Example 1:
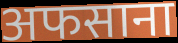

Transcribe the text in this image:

अफसाना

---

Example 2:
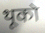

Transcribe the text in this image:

थूको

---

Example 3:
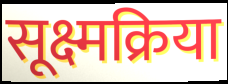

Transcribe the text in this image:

सूक्ष्मक्रिया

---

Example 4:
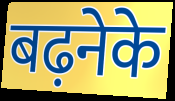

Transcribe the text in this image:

बढ़नेके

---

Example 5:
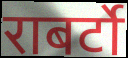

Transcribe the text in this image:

राबर्टो